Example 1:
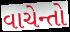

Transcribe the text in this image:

વાચેન્તો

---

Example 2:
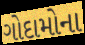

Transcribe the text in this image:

ગોદામોના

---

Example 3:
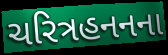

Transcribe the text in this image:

ચરિત્રહનનના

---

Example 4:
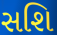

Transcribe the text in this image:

સશિ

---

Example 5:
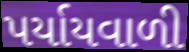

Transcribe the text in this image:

પર્યાયવાળી